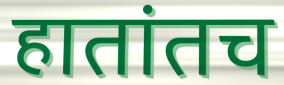
हातांतच